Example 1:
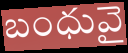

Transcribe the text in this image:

బంధువై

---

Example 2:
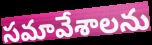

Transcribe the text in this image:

సమావేశాలను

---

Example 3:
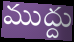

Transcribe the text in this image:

ముద్దు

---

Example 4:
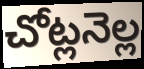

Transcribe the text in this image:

చోట్లనెల్ల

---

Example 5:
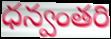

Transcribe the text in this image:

ధన్వంతరి